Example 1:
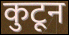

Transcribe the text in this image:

कुटून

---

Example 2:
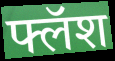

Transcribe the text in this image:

फ्लॅश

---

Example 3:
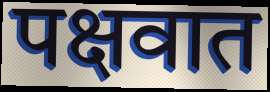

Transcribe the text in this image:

पक्षवात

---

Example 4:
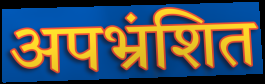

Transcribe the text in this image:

अपभ्रंशित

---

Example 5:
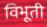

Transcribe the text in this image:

विभूती